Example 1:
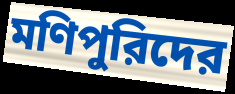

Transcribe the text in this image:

মণিপুরিদের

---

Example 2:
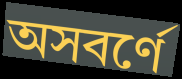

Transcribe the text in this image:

অসবর্ণে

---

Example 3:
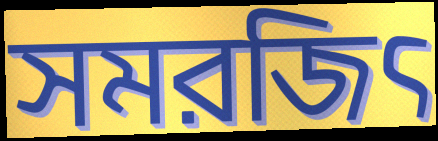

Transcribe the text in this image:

সমরজিৎ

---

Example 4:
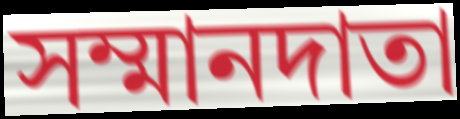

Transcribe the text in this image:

সম্মানদাতা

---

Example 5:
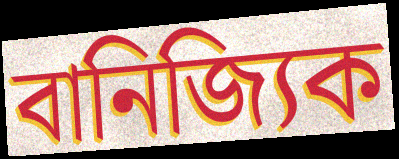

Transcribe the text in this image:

বানিজ্যিক